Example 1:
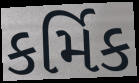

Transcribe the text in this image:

કર્મિક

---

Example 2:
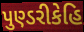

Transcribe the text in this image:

પુણ્ડરીકેહિ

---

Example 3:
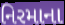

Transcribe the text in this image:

નિરમાના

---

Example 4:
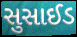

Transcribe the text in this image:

સુસાઈડ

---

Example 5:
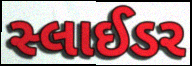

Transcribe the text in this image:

સ્લાઈડર